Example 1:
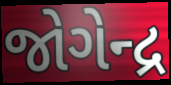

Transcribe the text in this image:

જોગેન્દ્ર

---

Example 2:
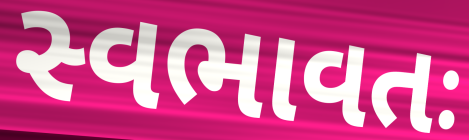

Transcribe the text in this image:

સ્વભાવતઃ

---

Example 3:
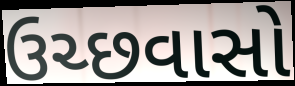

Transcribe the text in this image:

ઉચ્છવાસો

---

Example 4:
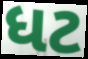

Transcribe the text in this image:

ધટ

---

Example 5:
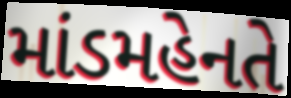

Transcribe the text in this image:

માંડમહેનતે